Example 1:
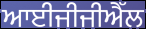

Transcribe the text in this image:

ਆਈਜੀਜੀਐੱਲ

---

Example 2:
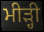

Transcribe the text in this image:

ਮੀੜ੍ਹੀ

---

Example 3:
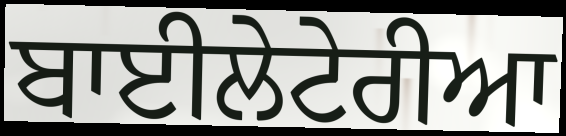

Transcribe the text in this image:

ਬਾਈਲੇਟੇਰੀਆ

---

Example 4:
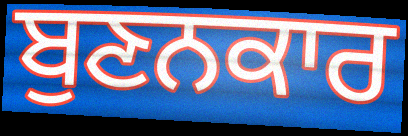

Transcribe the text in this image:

ਬੁਣਨਕਾਰ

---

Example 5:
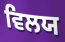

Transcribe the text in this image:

ਵਿਲਯ